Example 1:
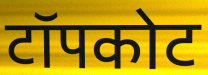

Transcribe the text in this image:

टॉपकोट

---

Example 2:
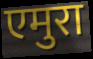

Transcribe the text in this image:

एमुरा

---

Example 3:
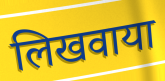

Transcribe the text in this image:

लिखवाया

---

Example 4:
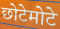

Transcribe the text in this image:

छोटेमोटे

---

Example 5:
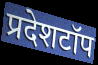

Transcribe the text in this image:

प्रदेशटॉप